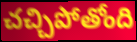
చచ్చిపోతోంది